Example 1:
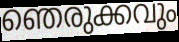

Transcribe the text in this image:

ഞെരുക്കവും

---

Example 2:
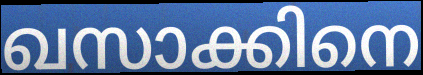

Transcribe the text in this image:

ഖസാക്കിനെ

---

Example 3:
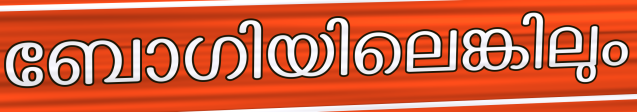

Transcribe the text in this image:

ബോഗിയിലെങ്കിലും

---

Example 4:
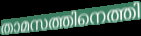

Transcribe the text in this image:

താമസത്തിനെത്തി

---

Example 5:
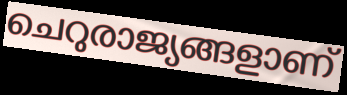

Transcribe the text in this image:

ചെറുരാജ്യങ്ങളാണ്